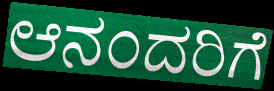
ಆನಂದರಿಗೆ